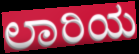
ಲಾರಿಯ